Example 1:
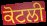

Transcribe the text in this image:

ਕੋਟਲੀ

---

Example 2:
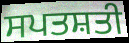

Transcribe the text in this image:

ਸਪਤਸ਼ਤੀ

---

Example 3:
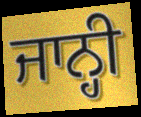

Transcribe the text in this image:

ਜਾਨ੍ਹੀ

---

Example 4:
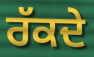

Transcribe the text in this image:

ਰੱਕਦੇ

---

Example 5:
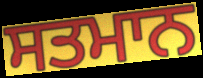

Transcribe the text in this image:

ਸਤਮਾਨ